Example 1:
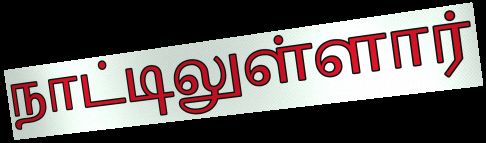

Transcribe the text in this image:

நாட்டிலுள்ளார்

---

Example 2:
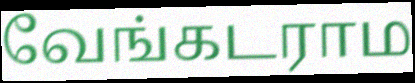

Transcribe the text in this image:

வேங்கடராம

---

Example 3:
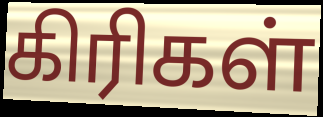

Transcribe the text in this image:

கிரிகள்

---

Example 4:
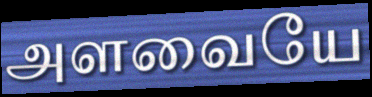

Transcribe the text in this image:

அளவையே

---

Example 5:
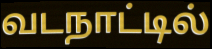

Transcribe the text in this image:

வடநாட்டில்